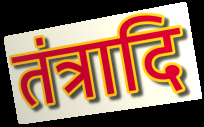
तंत्रादि